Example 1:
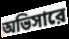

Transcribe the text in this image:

অভিসারে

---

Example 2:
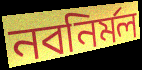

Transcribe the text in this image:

নবনির্মল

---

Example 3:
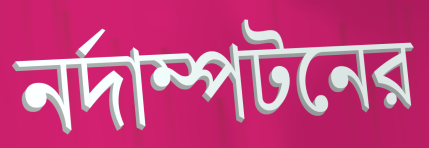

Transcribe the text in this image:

নর্দাম্পটনের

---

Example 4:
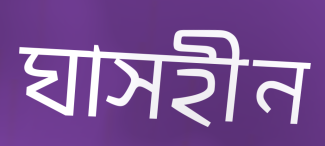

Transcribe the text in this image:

ঘাসহীন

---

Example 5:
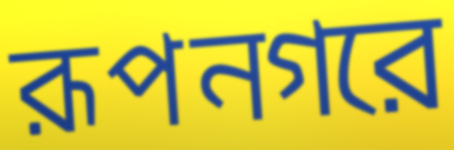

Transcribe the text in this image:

রূপনগরে